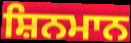
ਸ਼ਿਨਮਾਨ